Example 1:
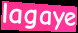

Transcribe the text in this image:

lagaye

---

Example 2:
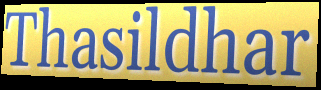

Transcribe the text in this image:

Thasildhar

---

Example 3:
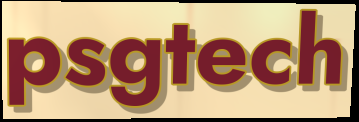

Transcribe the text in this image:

psgtech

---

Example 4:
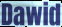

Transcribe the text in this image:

Dawid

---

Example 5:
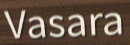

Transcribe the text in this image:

Vasara